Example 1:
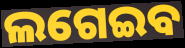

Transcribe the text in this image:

ଲଗେଇବ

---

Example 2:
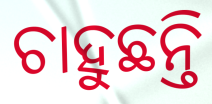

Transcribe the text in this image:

ଚାହୁଛନ୍ତି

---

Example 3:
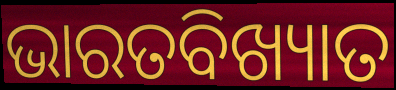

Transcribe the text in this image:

ଭାରତବିଖ୍ୟାତ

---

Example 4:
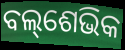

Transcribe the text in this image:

ବଲ୍‌ଶେଭିକ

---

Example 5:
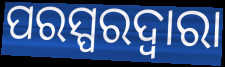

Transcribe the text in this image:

ପରସ୍ପରଦ୍ୱାରା